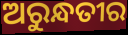
ଅରୁନ୍ଧତୀର